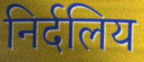
निर्दलिय